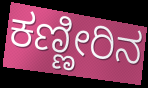
ಕಣ್ಣೀರಿನ